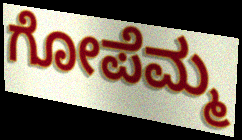
ಗೋಪೆಮ್ಮ